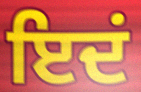
ਇਦਂ